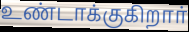
உண்டாக்குகிறார்